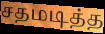
சதமடித்த